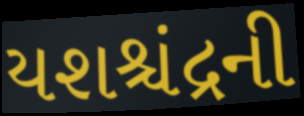
યશશ્ચંદ્રની